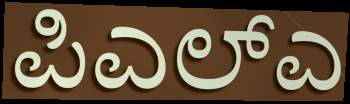
ಪಿಎಲ್ಎ